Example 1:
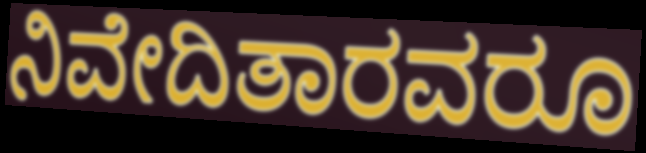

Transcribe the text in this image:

ನಿವೇದಿತಾರವರೂ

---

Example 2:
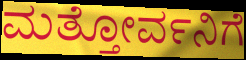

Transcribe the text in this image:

ಮತ್ತೋರ್ವನಿಗೆ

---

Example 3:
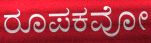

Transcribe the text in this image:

ರೂಪಕವೋ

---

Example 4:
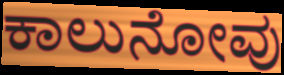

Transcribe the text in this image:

ಕಾಲುನೋವು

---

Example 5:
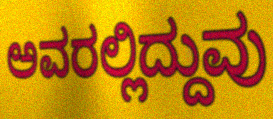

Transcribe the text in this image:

ಅವರಲ್ಲಿದ್ದುವು